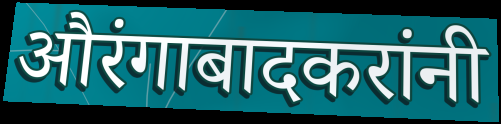
औरंगाबादकरांनी